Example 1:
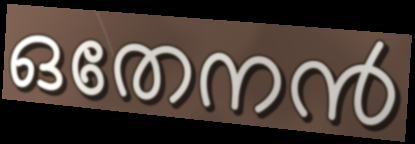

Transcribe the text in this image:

ഒതേനൻ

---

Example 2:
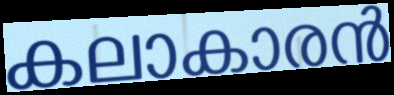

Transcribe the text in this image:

കലാകാരൻ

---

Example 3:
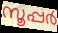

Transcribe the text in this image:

സൂപ്പർ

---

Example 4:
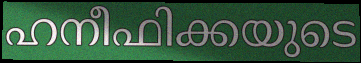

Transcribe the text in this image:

ഹനീഫിക്കയുടെ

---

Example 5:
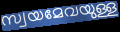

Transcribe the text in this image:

സ്വയമേവയുള്ള